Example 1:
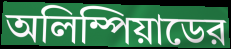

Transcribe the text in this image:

অলিম্পিয়াডের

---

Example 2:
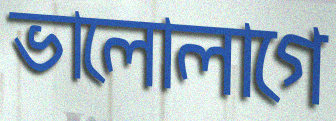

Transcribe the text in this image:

ভালোলাগে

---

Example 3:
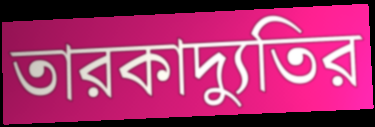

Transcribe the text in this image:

তারকাদ্যুতির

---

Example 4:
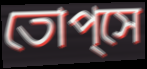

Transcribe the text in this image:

তোপ্‌সে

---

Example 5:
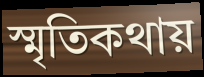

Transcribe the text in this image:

স্মৃতিকথায়